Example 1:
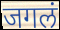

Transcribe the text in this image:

जगलं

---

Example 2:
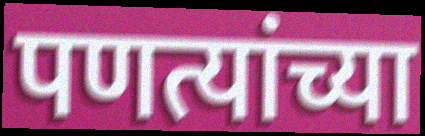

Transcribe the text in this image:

पणत्यांच्या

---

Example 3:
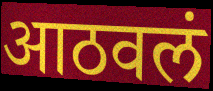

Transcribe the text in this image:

आठवलं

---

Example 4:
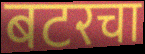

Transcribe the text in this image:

बटरचा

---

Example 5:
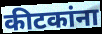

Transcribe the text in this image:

कीटकांना